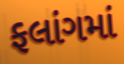
ફલાંગમાં